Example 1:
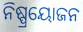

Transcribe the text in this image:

ନିଷ୍ପ୍ରୟୋଜନ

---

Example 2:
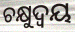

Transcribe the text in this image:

ଚକ୍ଷୁଦ୍ୱୟ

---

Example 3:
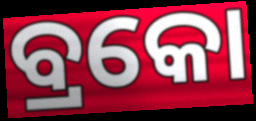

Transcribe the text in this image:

ବ୍ରକୋ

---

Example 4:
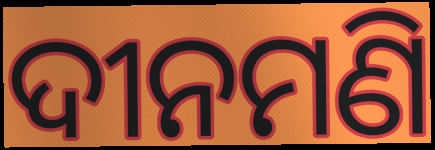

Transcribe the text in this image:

ଦୀନମଣି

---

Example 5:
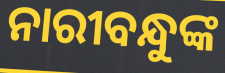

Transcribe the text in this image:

ନାରୀବନ୍ଧୁଙ୍କ